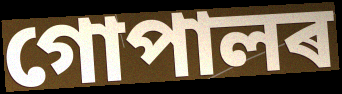
গোপালৰ